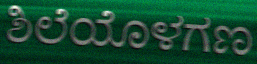
ಶಿಲೆಯೊಳಗಣ